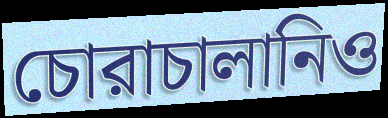
চোরাচালানিও